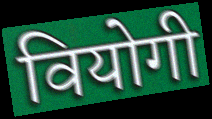
वियोगी